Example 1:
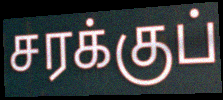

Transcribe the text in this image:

சரக்குப்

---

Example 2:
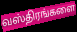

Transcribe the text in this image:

வஸ்திரங்களை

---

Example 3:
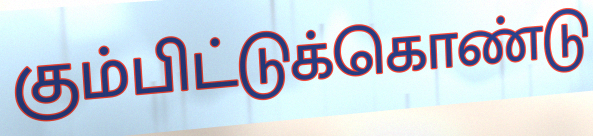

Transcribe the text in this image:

கும்பிட்டுக்கொண்டு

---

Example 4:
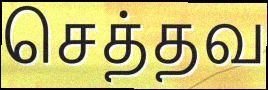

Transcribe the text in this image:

செத்தவ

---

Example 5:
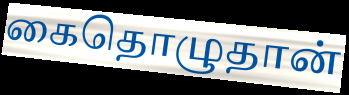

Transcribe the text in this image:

கைதொழுதான்